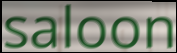
saloon